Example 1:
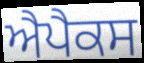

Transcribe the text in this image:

ਐਪੈਕਸ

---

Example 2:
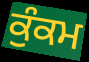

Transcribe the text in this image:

ਕੁੰਕਮ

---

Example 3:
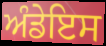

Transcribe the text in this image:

ਅੰਡੇਇਸ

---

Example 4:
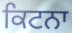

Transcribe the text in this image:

ਕਿਟਨਾ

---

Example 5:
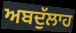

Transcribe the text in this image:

ਅਬਦੁੱਲਾਹ